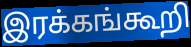
இரக்கங்கூறி